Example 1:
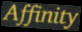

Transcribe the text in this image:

Affinity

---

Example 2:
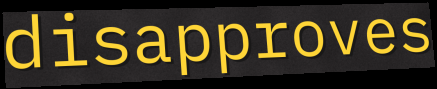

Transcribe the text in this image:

disapproves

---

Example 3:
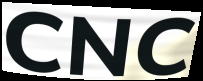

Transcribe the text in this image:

CNC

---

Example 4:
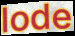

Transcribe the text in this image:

lode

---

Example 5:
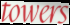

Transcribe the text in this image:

towers